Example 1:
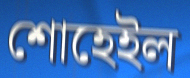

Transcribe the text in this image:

শোহেইল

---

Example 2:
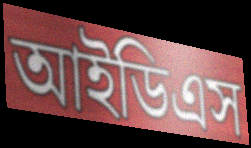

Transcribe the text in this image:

আইডিএস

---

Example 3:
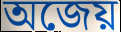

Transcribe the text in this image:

অজেয়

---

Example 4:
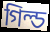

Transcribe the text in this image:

গিল্ড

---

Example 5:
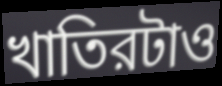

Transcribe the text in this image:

খাতিরটাও